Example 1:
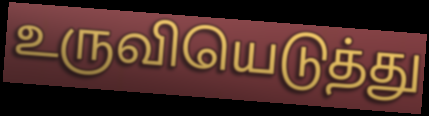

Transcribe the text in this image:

உருவியெடுத்து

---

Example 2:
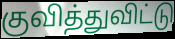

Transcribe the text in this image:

குவித்துவிட்டு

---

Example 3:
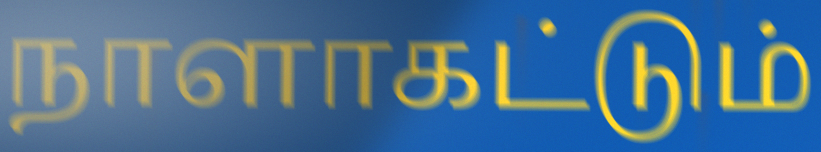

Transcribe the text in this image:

நாளாகட்டும்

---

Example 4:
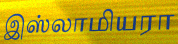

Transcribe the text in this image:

இஸ்லாமியரா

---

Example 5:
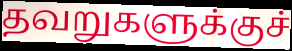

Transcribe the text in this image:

தவறுகளுக்குச்